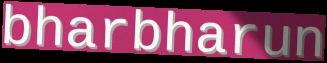
bharbharun